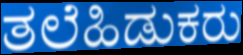
ತಲೆಹಿಡುಕರು